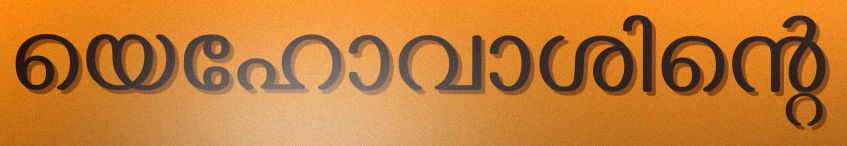
യെഹോവാശിന്റെ